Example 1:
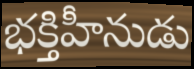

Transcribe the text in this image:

భక్తిహీనుడు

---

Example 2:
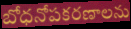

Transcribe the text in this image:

బోధనోపకరణాలను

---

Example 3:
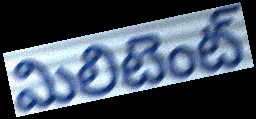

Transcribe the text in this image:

మిలిటెంట్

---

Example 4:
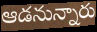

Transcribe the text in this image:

ఆడనున్నారు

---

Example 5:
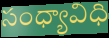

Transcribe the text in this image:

సంధ్యావిధి